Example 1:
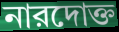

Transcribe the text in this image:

নারদোক্ত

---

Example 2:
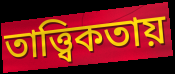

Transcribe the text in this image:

তাত্ত্বিকতায়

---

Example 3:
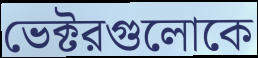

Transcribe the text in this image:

ভেক্টরগুলোকে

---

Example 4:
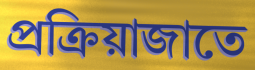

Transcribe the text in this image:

প্রক্রিয়াজাতে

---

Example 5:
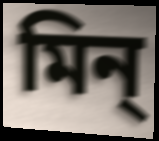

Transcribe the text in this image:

মিন্